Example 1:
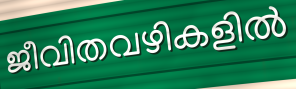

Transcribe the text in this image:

ജീവിതവഴികളിൽ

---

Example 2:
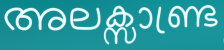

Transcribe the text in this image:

അലക്സാണ്ട്ര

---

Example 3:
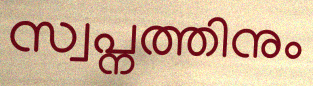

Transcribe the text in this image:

സ്വപ്നത്തിനും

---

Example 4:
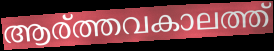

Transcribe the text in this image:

ആര്ത്തവകാലത്ത്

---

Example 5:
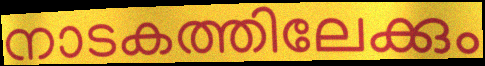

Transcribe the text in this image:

നാടകത്തിലേക്കും